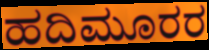
ಹದಿಮೂರರ